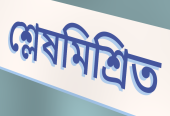
শ্লেষমিশ্রিত